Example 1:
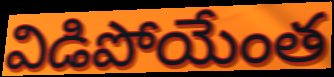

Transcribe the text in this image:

విడిపోయేంత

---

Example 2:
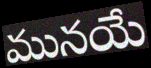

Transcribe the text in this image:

మునయే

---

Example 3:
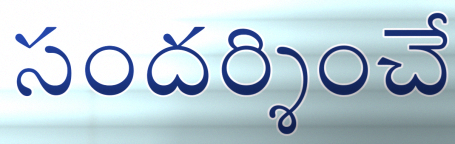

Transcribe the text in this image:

సందర్శించే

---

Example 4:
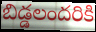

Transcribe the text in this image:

బిడ్డలందరికి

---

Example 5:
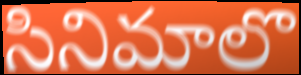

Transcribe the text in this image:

సినిమాలొ